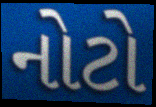
નોટો